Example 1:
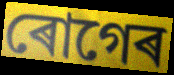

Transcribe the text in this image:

ৰোগেৰ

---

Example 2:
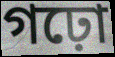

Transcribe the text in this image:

গঢ়ো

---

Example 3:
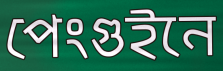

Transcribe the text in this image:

পেংগুইনে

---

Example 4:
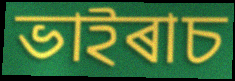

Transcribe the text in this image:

ভাইৰাচ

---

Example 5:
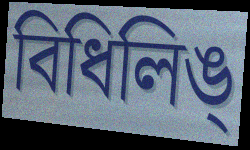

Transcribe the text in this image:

বিধিলিঙ্